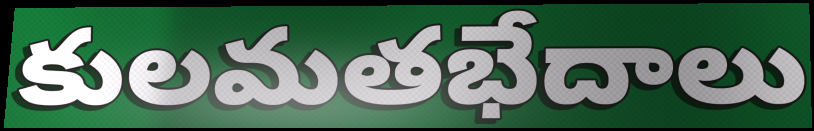
కులమతభేదాలు